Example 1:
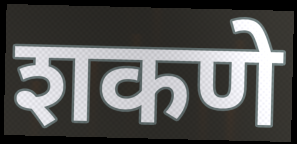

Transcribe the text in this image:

शकणे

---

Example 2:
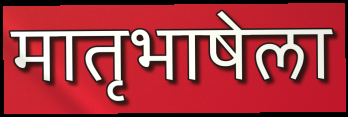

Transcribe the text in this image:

मातृभाषेला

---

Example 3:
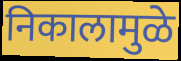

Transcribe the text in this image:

निकालामुळे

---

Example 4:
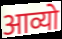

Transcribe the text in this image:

आव्यो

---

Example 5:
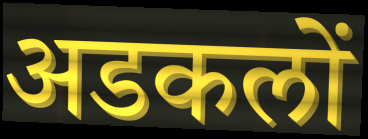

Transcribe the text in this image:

अडकलों